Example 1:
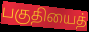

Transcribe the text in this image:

பகுதியைத்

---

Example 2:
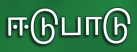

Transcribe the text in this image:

ஈடுபாடு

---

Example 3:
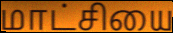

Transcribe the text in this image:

மாட்சியை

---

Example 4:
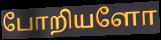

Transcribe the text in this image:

போறியளோ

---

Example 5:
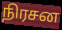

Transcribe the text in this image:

நிரசன